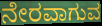
ನೇರವಾಗುವ